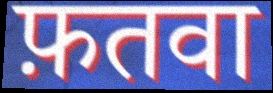
फ़तवा